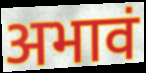
अभावं